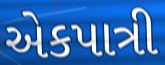
એકપાત્રી